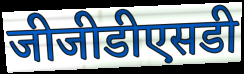
जीजीडीएसडी